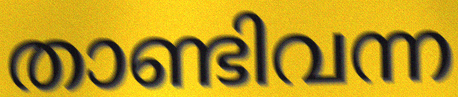
താണ്ടിവന്ന